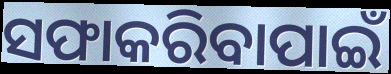
ସଫାକରିବାପାଇଁ